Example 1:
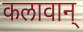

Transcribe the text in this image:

कलावान्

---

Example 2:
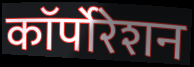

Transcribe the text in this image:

कॉर्पोरेशन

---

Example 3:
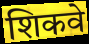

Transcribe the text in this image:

शिकवे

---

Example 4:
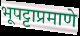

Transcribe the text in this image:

भूपट्टाप्रमाणे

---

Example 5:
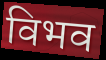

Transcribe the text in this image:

विभव